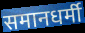
समानधर्मी